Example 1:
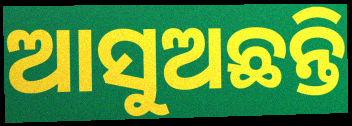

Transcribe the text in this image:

ଆସୁଅଛନ୍ତି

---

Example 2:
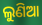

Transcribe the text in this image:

ଲୁଣିଆ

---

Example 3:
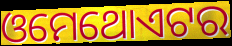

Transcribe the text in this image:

ଓମେଥୋଏଟର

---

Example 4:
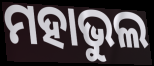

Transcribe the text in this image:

ମହାଭୁଲ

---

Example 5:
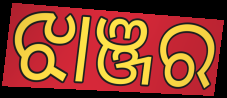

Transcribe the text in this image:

ଝାଞ୍ଜର